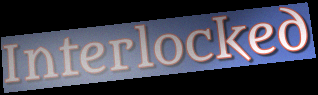
Interlocked